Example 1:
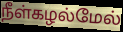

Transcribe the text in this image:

நீள்கழல்மேல்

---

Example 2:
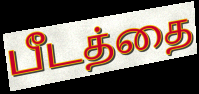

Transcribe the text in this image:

பீடத்தை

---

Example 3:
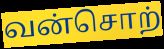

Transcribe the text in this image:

வன்சொற்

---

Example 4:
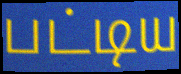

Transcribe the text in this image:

பட்டிய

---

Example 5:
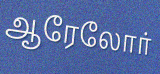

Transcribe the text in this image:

ஆரேலோர்